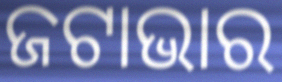
ଜଟାଭାର